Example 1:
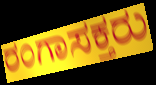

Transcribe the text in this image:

ರಂಗಾಸಕ್ತರು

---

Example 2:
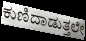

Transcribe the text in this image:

ಕುಣಿದಾಡುತ್ತಲೇ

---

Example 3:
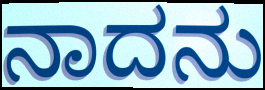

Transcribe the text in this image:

ನಾದನು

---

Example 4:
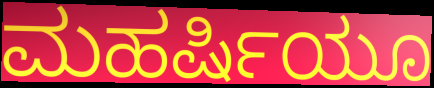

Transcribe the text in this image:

ಮಹರ್ಷಿಯೂ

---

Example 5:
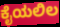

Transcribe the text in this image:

ಕೈಯಲಿಲ